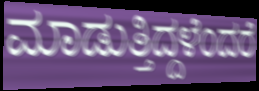
ಮಾಡುತ್ತಿದ್ದಳೆಂದರೆ